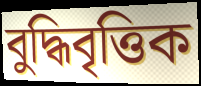
বুদ্ধিবৃত্তিক